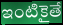
ఇంటికైతే